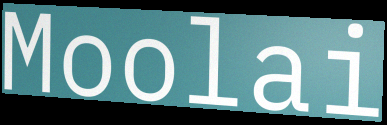
Moolai